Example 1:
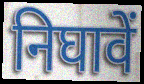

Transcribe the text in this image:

निघावें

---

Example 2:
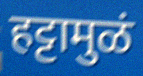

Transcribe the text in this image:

हट्टामुळं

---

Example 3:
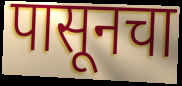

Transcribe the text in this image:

पासूनचा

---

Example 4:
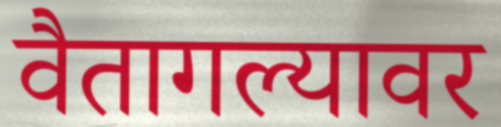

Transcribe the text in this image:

वैतागल्यावर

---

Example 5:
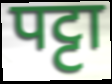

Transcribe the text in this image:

पट्टा